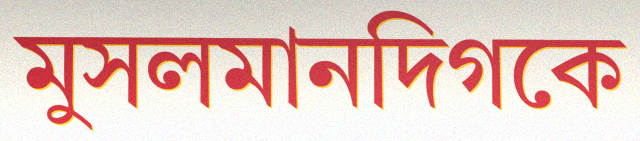
মুসলমানদিগকে